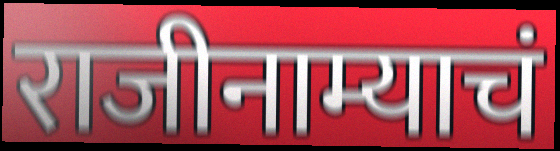
राजीनाम्याचं